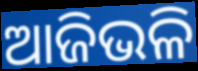
ଆଜିଭଳି